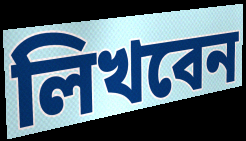
লিখবেন